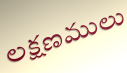
లక్షణములు